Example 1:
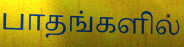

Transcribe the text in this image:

பாதங்களில்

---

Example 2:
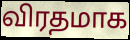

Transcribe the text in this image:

விரதமாக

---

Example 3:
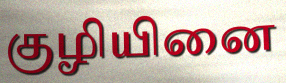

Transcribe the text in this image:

குழியினை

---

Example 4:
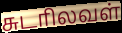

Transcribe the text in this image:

சுடரிலவள்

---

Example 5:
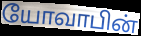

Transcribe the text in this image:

யோவாபின்